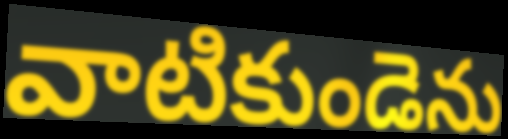
వాటికుండెను